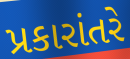
પ્રકારાંતરે